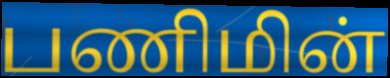
பணிமின்